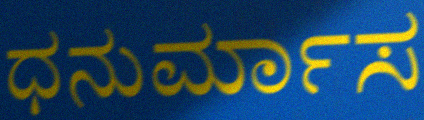
ಧನುರ್ಮಾಸ